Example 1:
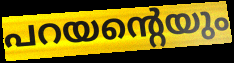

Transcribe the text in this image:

പറയന്റെയും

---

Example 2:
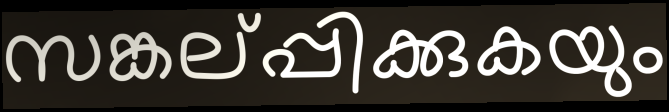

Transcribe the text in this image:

സങ്കല്പ്പിക്കുകയും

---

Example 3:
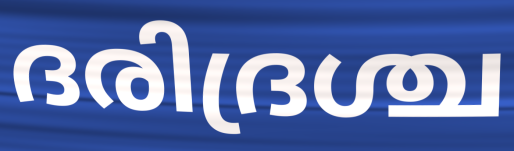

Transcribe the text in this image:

ദരിദ്രശ്ച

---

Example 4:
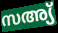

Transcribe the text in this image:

സഅ്യ്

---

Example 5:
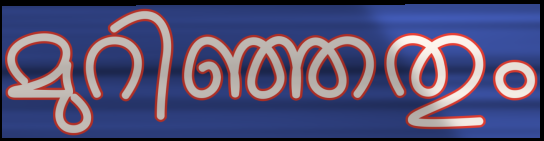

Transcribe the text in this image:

മുറിഞ്ഞതും